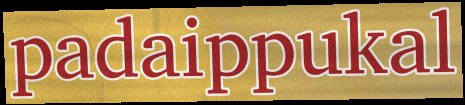
padaippukal